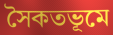
সৈকতভূমে